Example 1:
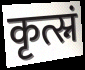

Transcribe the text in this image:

कृत्स्नं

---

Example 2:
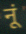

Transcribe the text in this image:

नूं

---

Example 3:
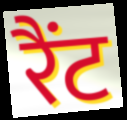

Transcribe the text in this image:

रैंट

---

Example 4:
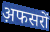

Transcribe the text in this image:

अ़फसरों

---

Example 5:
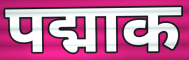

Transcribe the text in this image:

पद्माक